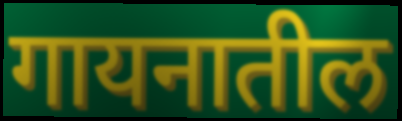
गायनातील